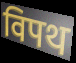
विपथ